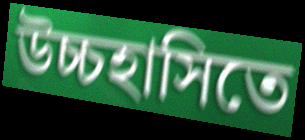
উচ্চহাসিতে